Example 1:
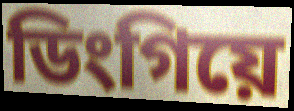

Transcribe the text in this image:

ডিংগিয়ে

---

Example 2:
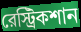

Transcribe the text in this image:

রেস্ট্রিকশান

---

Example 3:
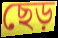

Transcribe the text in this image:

ছেড়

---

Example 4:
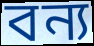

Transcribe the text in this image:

বন্য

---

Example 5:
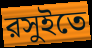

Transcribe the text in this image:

রসুইতে